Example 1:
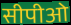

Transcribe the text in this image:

सीपीओ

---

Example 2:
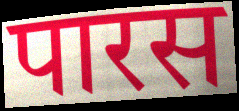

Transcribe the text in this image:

पारस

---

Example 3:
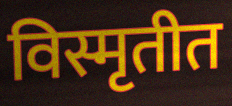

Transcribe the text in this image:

विस्मृतीत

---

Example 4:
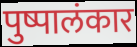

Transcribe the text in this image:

पुष्पालंकार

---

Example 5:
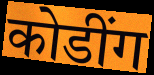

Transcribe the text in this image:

कोडींग